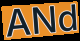
ANd